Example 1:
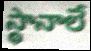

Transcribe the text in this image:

స్థానాలే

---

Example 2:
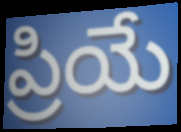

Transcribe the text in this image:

ప్రియే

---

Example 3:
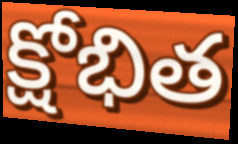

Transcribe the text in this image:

క్షోభిత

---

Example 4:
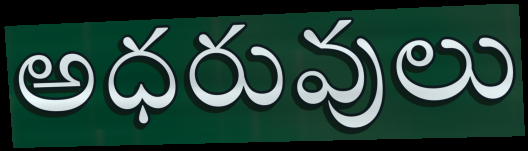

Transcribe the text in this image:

అధరువులు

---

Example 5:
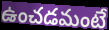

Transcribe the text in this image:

ఉంచడమంటే